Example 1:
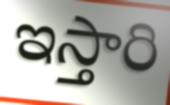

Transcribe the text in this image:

ఇస్తారి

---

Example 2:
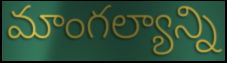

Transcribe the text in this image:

మాంగల్యాన్ని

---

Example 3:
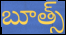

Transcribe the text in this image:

బూత్స్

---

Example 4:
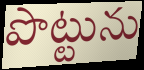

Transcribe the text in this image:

పొట్టును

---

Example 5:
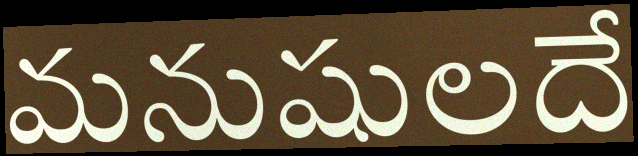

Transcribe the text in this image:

మనుషులదే